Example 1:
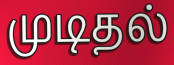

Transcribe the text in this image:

முடிதல்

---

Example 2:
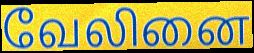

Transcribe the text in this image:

வேலினை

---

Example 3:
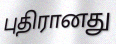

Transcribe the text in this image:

புதிரானது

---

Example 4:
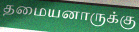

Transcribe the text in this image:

தமையனாருக்கு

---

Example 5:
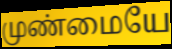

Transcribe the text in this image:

முண்மையே